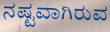
ನಷ್ಟವಾಗಿರುವ